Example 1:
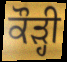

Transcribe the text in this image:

ਕੌੜ੍ਹੀ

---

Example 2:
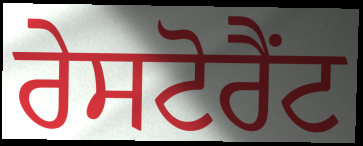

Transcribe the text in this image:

ਰੇਸਟੋਰੈਂਟ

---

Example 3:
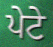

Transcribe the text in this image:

ਪੇਟੇ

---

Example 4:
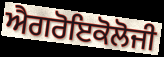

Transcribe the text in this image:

ਐਗਰੋਇਕੋਲੋਜੀ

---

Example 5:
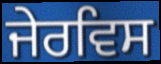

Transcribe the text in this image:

ਜੇਰਵਿਸ